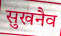
सुखनैव